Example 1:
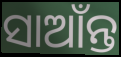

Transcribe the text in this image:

ସାଆଁନ୍ତ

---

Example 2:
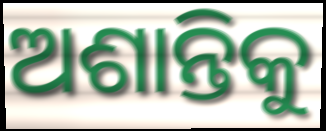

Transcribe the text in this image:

ଅଶାନ୍ତିକୁ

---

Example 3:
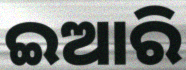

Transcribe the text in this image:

ଇଆରି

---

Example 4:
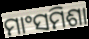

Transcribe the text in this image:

ମାଂସମିଶା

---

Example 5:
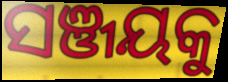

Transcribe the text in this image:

ସଞ୍ଜୟକୁ